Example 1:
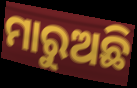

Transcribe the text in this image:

ମାରୁଅଛି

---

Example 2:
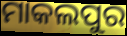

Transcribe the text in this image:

ମାକଲପୁର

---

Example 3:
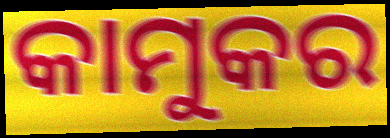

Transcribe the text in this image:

କାମୁକର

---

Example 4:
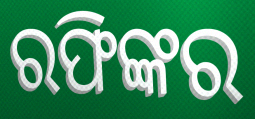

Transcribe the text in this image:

ରଫିଙ୍କର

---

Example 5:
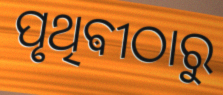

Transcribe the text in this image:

ପୃଥିଵୀଠାରୁ